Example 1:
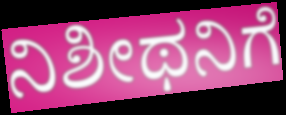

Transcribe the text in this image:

ನಿಶೀಥನಿಗೆ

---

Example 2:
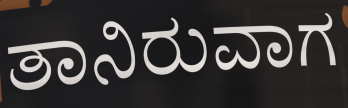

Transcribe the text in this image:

ತಾನಿರುವಾಗ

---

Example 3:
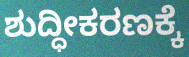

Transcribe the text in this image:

ಶುದ್ಧೀಕರಣಕ್ಕೆ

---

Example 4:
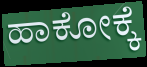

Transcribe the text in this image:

ಹಾಕೋಕ್ಕೆ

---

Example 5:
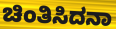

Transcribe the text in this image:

ಚಿಂತಿಸಿದನಾ